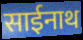
साईनाथ